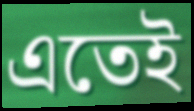
এতেই